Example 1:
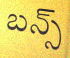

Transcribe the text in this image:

బన్స్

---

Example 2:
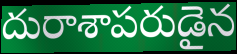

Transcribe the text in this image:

దురాశాపరుడైన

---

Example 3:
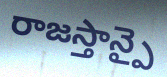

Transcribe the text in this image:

రాజస్తాన్పై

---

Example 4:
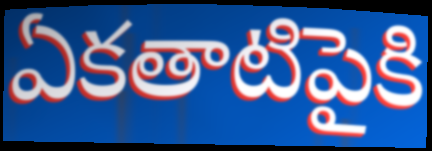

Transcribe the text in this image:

ఏకతాటిపైకి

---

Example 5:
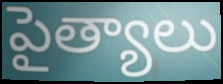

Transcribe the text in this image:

పైత్యాలు